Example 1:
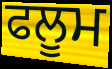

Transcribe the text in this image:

ਫਲੂਮ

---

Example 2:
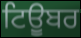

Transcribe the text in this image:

ਟਿਊੁਬਰ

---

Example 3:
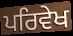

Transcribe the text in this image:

ਪਰਿਵੇਖ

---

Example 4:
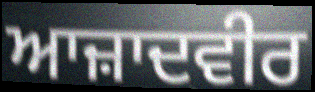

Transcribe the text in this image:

ਆਜ਼ਾਦਵੀਰ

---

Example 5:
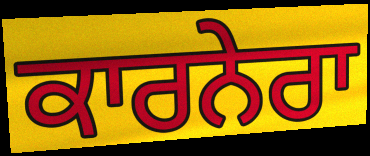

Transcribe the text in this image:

ਕਾਰਨੇਰਾ